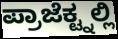
ಪ್ರಾಜೆಕ್ಟ್ನಲ್ಲಿ